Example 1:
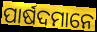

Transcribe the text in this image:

ପାର୍ଷଦମାନେ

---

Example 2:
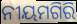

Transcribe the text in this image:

ନୀୟମଗିରି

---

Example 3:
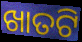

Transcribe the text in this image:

ଖାତଟି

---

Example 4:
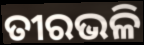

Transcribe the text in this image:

ତୀରଭଳି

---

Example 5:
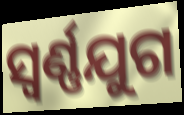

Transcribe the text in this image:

ସ୍ଵର୍ଣ୍ଣଯୁଗ